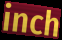
inch